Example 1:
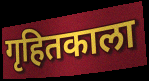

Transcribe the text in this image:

गृहितकाला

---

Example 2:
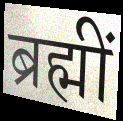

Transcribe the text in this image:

ब्रह्मीं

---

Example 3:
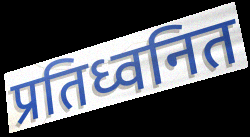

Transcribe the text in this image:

प्रतिध्वनित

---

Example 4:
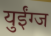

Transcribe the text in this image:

युईंग्ज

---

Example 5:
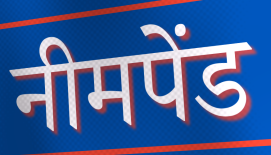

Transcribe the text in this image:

नीमपेंड